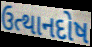
ઉત્થાનદોષ